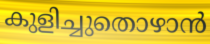
കുളിച്ചുതൊഴാൻ